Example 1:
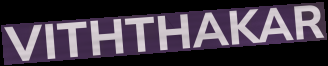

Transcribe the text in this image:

VITHTHAKAR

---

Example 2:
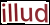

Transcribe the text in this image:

illud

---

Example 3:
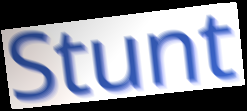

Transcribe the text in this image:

Stunt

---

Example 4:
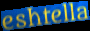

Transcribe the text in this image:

eshtella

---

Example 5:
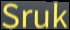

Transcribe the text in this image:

Sruk